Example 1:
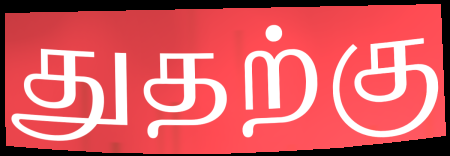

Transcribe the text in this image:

துதற்கு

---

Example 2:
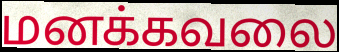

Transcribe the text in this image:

மனக்கவலை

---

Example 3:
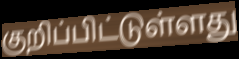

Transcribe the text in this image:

குறிப்பிட்டுள்ளது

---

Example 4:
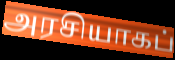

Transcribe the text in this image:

அரசியாகப்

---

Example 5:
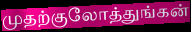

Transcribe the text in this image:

முதற்குலோத்துங்கன்